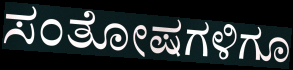
ಸಂತೋಷಗಳಿಗೂ